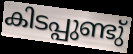
കിടപ്പുണ്ടു്